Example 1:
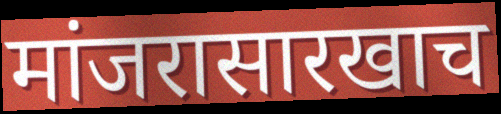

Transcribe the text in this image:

मांजरासारखाच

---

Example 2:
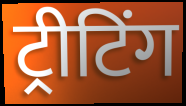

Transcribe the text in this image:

ट्रीटिंग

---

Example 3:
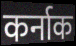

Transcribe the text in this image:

कर्नाक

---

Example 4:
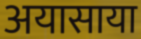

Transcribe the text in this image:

अयासाया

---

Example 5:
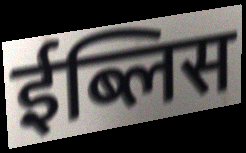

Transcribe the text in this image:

ईब्लिस